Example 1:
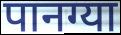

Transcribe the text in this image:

पानग्या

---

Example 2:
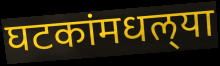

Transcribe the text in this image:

घटकांमधल्या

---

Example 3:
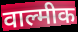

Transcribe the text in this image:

वाल्मीक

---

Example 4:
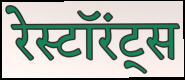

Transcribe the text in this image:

रेस्टॉरंट्‌स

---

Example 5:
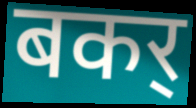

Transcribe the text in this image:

बकर्